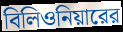
বিলিওনিয়ারের